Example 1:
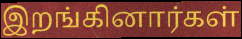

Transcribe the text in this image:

இறங்கினார்கள்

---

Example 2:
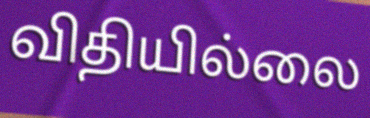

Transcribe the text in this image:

விதியில்லை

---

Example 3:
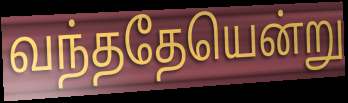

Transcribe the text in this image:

வந்ததேயென்று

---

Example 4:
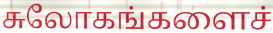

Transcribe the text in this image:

சுலோகங்களைச்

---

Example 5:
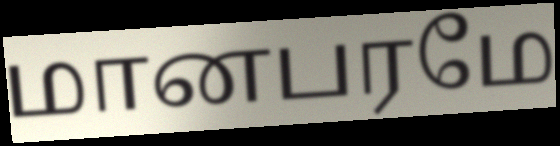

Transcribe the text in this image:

மானபரமே